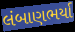
લંબાણભર્યા